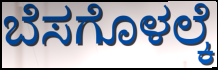
ಬೆಸಗೊಳಲ್ಕೆ